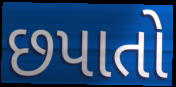
છપાતો